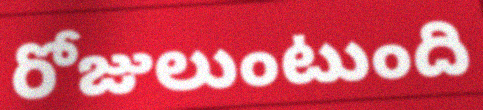
రోజులుంటుంది